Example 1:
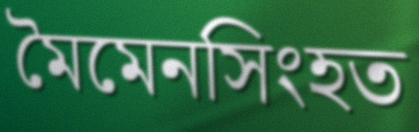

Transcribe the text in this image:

মৈমেনসিংহত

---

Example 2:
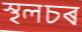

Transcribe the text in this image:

স্থলচৰ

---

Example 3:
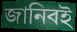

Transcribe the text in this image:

জানিবই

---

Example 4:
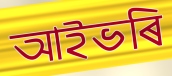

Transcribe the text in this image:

আইভৰি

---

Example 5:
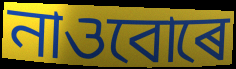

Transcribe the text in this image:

নাওবোৰে